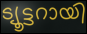
ട്യൂട്ടറായി